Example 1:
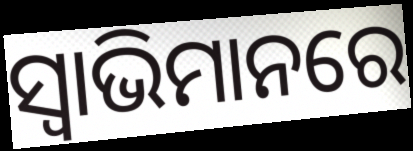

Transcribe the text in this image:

ସ୍ୱାଭିମାନରେ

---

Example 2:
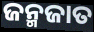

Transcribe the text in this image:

ଜନ୍ମଜାତ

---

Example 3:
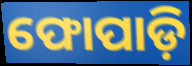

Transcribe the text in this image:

ଫୋପାଡ଼ି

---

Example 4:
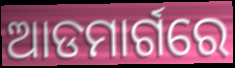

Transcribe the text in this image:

ଆଡମାର୍ଗରେ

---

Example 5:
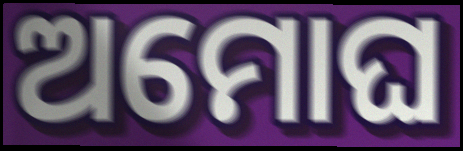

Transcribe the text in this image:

ଅମୋଘ